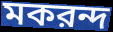
মকরন্দ